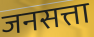
जनसत्ता